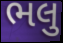
ભલુ